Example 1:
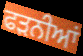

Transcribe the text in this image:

ਫੜਨੀਆਂ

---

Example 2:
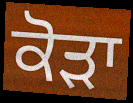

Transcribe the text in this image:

ਕੋੜਾ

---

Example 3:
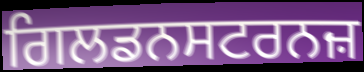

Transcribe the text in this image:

ਗਿਲਡਨਸਟਰਨਜ਼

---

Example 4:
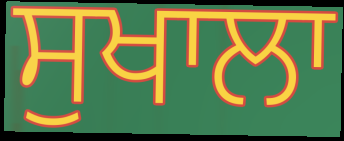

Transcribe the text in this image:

ਸੁਖਾਲਾ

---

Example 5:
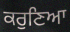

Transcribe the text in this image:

ਕਰੁਣਿਆ